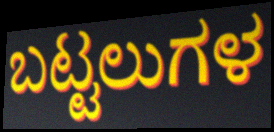
ಬಟ್ಟಲುಗಳ